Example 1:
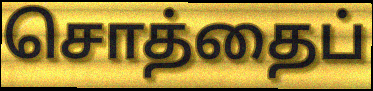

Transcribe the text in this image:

சொத்தைப்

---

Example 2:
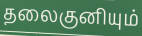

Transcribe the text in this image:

தலைகுனியும்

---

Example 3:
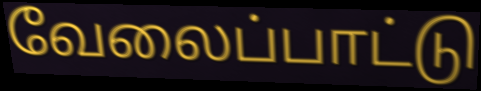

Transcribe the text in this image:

வேலைப்பாட்டு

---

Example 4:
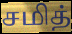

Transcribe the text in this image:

சமித்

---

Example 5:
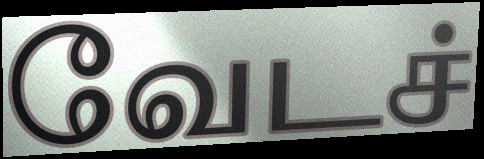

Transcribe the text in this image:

வேடச்